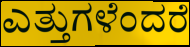
ಎತ್ತುಗಳೆಂದರೆ